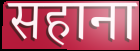
सहाना